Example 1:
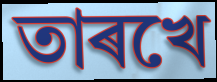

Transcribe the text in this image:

তাৰখে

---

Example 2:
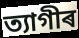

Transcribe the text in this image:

ত্যাগীৰ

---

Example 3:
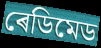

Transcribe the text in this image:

ৰেডিমেড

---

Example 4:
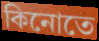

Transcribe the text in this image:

কিনোতে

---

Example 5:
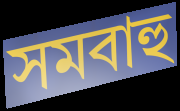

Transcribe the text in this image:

সমবাহু